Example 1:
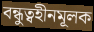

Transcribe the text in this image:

বন্ধুত্বহীনমূলক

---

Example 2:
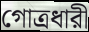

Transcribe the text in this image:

গোত্রধারী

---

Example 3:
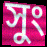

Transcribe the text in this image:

সুং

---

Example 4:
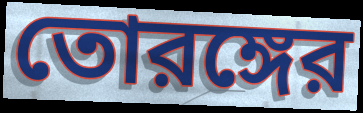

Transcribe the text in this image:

তোরঙ্গের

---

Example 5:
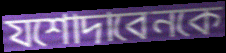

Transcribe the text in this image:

যশোদাবেনকে